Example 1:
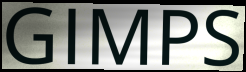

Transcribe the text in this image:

GIMPS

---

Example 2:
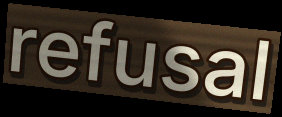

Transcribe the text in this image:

refusal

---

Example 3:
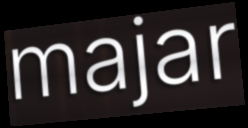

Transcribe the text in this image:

majar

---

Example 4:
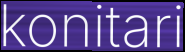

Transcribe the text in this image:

konitari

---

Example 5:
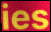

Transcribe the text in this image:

ies